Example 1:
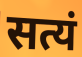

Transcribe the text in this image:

सत्यं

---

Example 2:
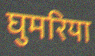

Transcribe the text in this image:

घुमरिया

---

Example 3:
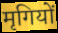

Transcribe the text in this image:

मृगियों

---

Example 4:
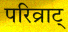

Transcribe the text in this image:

परिव्राट्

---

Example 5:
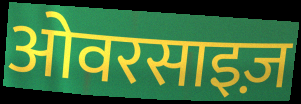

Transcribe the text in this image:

ओवरसाइज़